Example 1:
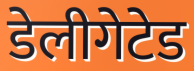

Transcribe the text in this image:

डेलीगेटेड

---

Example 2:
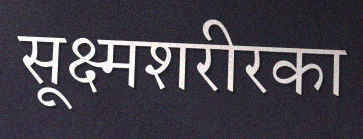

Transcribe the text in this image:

सूक्ष्मशरीरका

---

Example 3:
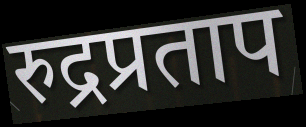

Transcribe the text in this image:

रुद्रप्रताप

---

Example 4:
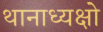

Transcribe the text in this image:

थानाध्यक्षो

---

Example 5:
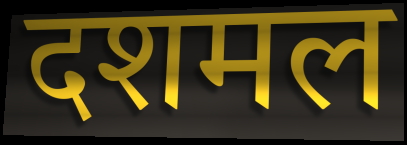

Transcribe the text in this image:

दशमल